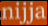
nijja